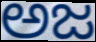
ಅಜ